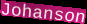
Johanson